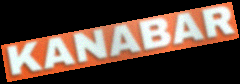
KANABAR